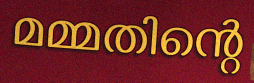
മമ്മതിന്റെ